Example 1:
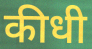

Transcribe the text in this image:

कीधी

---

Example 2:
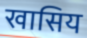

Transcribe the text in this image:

खासिय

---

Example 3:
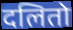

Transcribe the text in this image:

दलितो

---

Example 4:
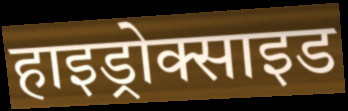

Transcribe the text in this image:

हाइड्रोक्साइड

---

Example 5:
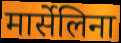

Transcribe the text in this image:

मार्सेलिना